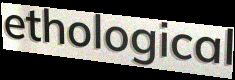
ethological